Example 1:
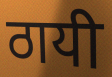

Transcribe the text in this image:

ठायी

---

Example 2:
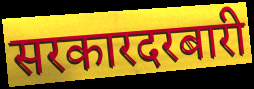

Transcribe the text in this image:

सरकारदरबारी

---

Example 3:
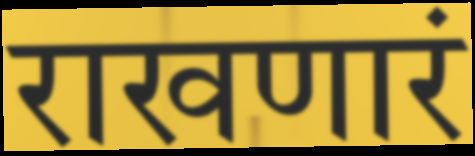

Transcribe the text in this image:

राखणारं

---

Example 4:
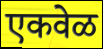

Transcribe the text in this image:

एकवेळ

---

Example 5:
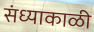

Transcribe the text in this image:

संध्‍याकाळी